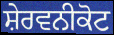
ਸ਼ੇਰਵਨੀਕੋਟ